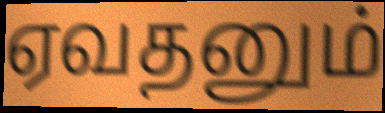
ஏவதனும்